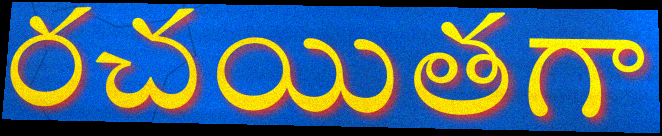
రచయితగా